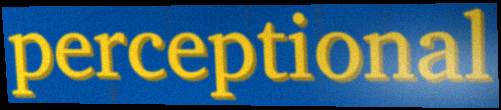
perceptional